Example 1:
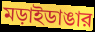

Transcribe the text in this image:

মড়াইডাঙার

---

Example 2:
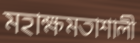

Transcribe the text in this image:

মহাক্ষমতাশালী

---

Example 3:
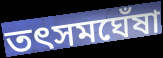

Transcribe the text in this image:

তৎসমঘেঁষা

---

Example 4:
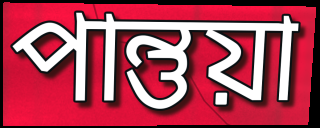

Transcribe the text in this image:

পান্তুয়া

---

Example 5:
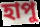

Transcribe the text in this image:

হাপু